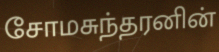
சோமசுந்தரனின்